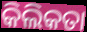
କିଲିକତା